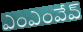
ఎంఎంవేవ్